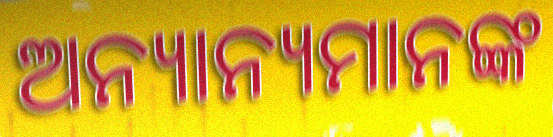
ଅନ୍ୟାନ୍ୟମାନଙ୍କ